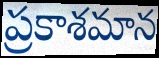
ప్రకాశమాన